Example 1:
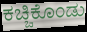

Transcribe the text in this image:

ಕಚ್ಚಿಕೊಂಡು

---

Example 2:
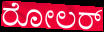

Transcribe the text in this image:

ರೋಲರ್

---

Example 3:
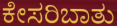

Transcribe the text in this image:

ಕೇಸರಿಬಾತು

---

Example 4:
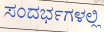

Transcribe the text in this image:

ಸಂದರ್ಭಗಳಲ್ಲಿ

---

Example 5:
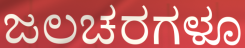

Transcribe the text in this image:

ಜಲಚರಗಳೂ